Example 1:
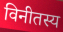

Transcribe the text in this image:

विनीतस्य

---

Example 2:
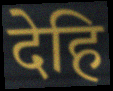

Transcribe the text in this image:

देहि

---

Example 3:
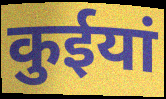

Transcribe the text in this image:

कुईयां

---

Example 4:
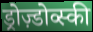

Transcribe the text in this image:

ड्रोज़्डोव्स्की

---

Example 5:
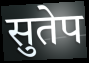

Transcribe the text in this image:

सुतेप